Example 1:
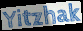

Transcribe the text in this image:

Yitzhak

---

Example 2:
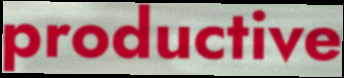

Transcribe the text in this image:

productive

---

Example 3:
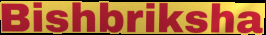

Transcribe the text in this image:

Bishbriksha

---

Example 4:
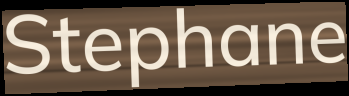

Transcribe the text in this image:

Stephane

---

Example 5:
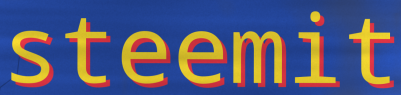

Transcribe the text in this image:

steemit